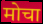
मोचा